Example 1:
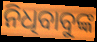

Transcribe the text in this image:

ନିଧିବାବୁଙ୍କ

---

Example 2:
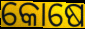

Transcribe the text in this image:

କୋଷେ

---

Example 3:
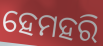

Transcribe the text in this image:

ହେମହରି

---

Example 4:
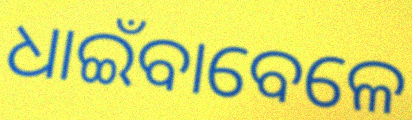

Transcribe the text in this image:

ଧାଇଁବାବେଳେ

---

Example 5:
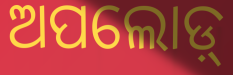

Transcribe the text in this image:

ଅପଲୋଡ଼୍